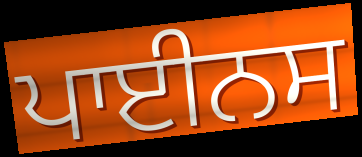
ਪਾਈਨਸ